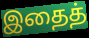
இதைத்